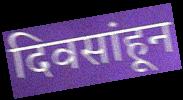
दिवसांहून